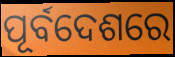
ପୂର୍ବଦେଶରେ